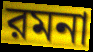
রমনা